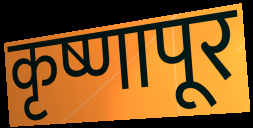
कृष्णापूर